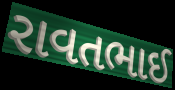
રાવતભાઈ